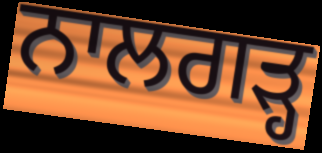
ਨਾਲਗੜ੍ਹ